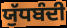
ਯੁੱਧਬੰਦੀ